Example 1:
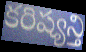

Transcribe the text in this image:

కరిష్యన్తి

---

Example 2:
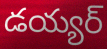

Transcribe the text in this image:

డయ్యర్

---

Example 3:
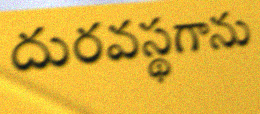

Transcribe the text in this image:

దురవస్థగాను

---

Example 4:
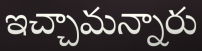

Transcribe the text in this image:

ఇచ్చామన్నారు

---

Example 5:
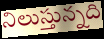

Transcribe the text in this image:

నిలుస్తున్నది